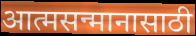
आत्मसन्मानासाठी